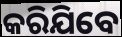
କରିଯିବେ